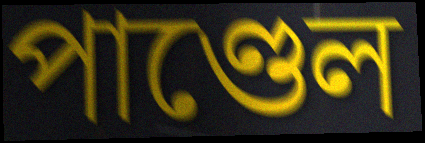
পাণ্ডেল